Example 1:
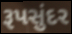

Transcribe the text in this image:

રૂપસુંદર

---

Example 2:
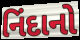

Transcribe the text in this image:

નિંદાનો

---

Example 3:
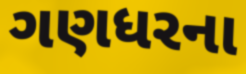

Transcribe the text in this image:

ગણધરના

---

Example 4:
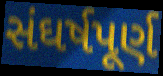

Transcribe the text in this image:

સંઘર્ષપૂર્ણ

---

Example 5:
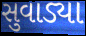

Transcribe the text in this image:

સુવાડ્યા